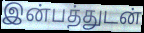
இன்பத்துடன்